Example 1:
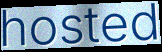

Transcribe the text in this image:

hosted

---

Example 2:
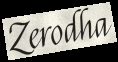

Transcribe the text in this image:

Zerodha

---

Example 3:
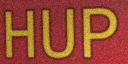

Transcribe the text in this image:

HUP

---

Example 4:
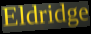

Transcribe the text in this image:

Eldridge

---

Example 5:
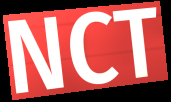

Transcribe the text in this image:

NCT